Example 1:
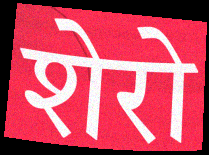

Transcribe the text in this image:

शेरो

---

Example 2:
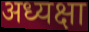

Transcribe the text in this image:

अध्यक्षा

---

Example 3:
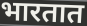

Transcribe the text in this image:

भारतात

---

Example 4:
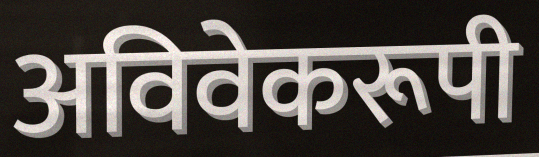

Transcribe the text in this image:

अविवेकरूपी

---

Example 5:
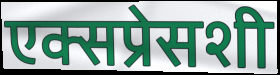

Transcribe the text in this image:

एक्सप्रेसशी